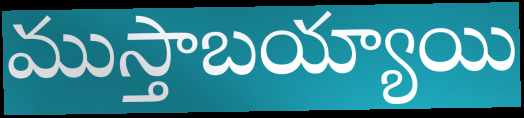
ముస్తాబయ్యాయి